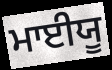
ਮਾਈਯੂ